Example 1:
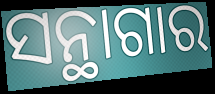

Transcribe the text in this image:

ସନ୍ଥାଗାର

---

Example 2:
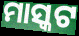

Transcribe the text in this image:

ମାସ୍କଟ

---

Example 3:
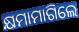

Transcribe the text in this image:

କ୍ଷମାମାଗିଲେ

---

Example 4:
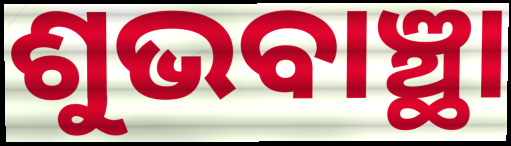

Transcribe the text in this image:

ଶୁଭବାଞ୍ଛା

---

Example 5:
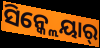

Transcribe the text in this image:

ସିନ୍କ୍ଲେୟାର୍